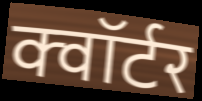
क्‍वॉर्टर